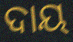
ଦାୟ